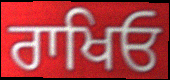
ਰਾਖਿਓ